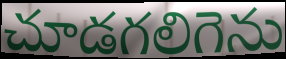
చూడగలిగెను